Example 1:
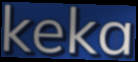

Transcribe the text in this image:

keka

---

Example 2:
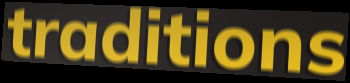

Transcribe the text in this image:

traditions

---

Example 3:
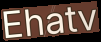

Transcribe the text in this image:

Ehatv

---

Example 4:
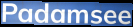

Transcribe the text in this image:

Padamsee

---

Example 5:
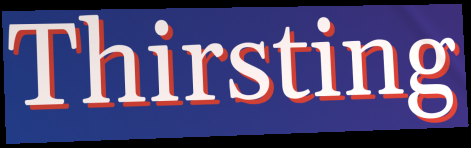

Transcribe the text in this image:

Thirsting